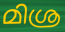
മിശ്ര